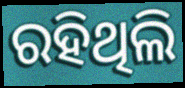
ରହିଥିଲି